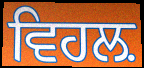
ਵਿਹਲ਼